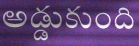
అడ్డుకుంది